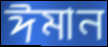
ঈমান